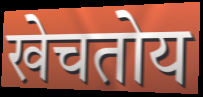
खेचतोय